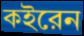
কইরেন